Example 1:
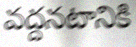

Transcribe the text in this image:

వద్దనటానికి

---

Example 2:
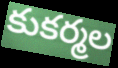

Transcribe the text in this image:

కుకర్మల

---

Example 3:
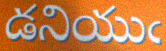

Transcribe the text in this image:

డనియుఁ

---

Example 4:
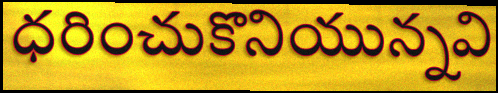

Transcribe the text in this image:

ధరించుకొనియున్నవి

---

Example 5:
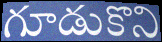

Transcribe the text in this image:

గూడుకొని